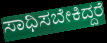
ಸಾಧಿಸಬೇಕಿದ್ದರೆ